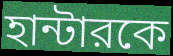
হান্টারকে